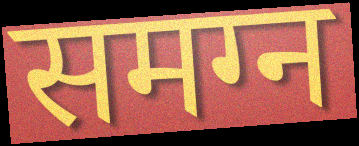
समग्न